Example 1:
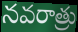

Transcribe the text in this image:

నవరాత్రు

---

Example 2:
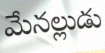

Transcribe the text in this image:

మేనల్లుడు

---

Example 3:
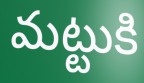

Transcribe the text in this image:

మట్టుకి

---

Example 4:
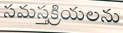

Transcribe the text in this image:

సమస్తక్రియలను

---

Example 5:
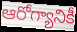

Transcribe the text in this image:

ఆరోగ్యానికీ